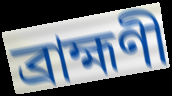
ব্রাহ্মণী